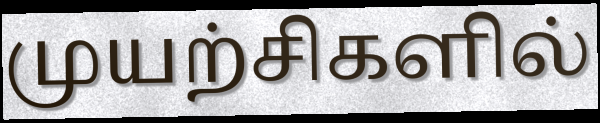
முயற்சிகளில்